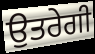
ਉਤਰੇਗੀ